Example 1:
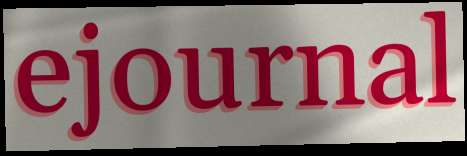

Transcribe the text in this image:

ejournal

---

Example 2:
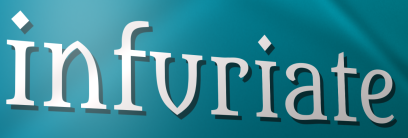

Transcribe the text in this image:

infuriate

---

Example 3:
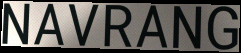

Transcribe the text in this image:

NAVRANG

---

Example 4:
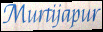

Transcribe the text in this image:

Murtijapur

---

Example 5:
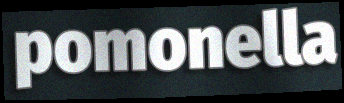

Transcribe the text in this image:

pomonella